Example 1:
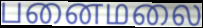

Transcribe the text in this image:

பனைமலை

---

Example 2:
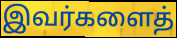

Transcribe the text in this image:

இவர்களைத்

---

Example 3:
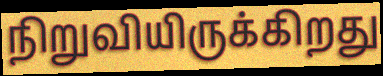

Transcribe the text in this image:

நிறுவியிருக்கிறது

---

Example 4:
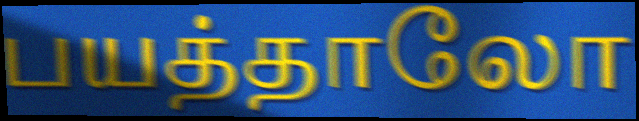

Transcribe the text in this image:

பயத்தாலோ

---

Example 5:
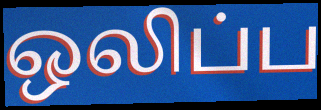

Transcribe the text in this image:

ஒலிப்ப